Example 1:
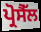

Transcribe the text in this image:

ਪ੍ਰੋਸੈੱਲ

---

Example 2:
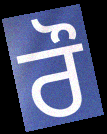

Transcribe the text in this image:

ਰੌ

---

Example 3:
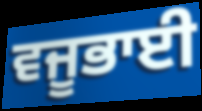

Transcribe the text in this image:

ਵਜੂਭਾਈ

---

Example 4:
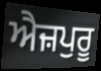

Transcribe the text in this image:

ਐਜ਼ਪੁਰੂ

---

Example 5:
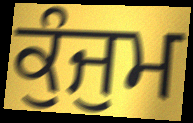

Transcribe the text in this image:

ਕੁੰਜੁਮ